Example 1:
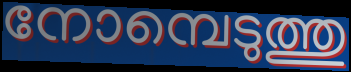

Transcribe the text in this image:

നോമ്പെടുത്തു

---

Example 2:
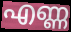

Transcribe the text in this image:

എണ്ണ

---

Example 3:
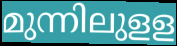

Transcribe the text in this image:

മുന്നിലുളള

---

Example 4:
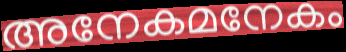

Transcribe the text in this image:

അനേകമനേകം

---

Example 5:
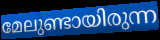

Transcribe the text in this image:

മേലുണ്ടായിരുന്ന